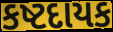
કષ્ટદાયક